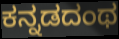
ಕನ್ನಡದಂಥ